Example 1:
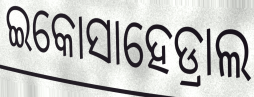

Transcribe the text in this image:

ଇକୋସାହେଡ୍ରାଲ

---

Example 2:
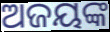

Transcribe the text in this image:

ଅଜୟଙ୍କ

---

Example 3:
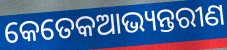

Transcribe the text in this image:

କେତେକଆଭ୍ୟନ୍ତରୀଣ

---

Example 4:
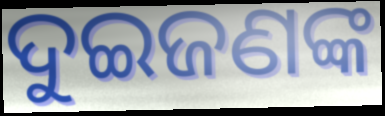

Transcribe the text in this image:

ଦୁଇଜଣଙ୍କ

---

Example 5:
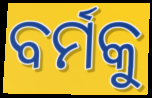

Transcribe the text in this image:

ବର୍ମକୁ